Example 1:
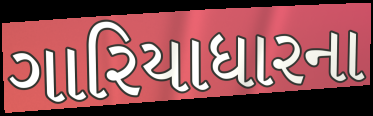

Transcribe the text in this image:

ગારિયાધારના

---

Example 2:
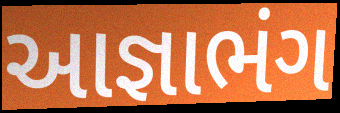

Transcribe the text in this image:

આજ્ઞાભંગ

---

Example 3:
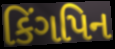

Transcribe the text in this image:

કિંગપિન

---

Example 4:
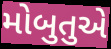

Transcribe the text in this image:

મોબુતુએ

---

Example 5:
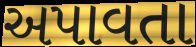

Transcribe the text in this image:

અપાવતા